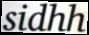
sidhh